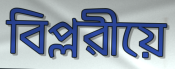
বিপ্লৱীয়ে